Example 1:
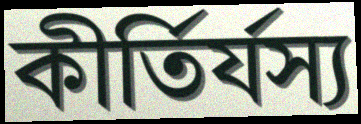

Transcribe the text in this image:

কীর্তির্যস্য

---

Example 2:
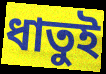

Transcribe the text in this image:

ধাতুই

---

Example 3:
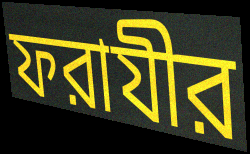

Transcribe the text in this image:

ফরাযীর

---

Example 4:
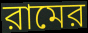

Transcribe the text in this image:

রামের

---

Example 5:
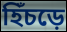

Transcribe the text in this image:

হিঁচড়ে